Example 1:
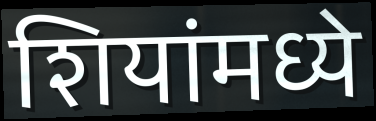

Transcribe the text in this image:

शियांमध्ये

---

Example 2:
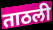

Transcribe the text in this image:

ताठली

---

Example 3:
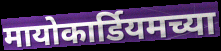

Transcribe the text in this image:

मायोकार्डियमच्या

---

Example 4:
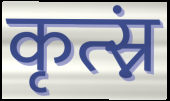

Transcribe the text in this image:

कृत्स्नं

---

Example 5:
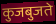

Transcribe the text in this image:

कुजबुजते